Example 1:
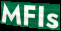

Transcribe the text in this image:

MFIs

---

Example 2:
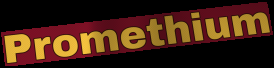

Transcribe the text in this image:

Promethium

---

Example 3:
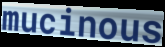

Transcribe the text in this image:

mucinous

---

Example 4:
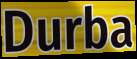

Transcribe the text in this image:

Durba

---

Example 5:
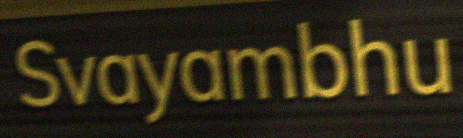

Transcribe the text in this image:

Svayambhu